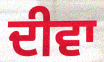
ਦੀਵਾ